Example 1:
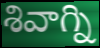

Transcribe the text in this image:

శివాగ్ని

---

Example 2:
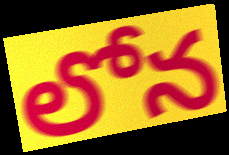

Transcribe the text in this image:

లోన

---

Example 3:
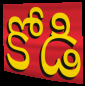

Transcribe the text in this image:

కోడి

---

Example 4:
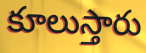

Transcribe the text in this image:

కూలుస్తారు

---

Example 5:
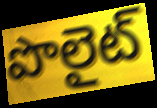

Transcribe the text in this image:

పొలైట్